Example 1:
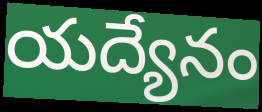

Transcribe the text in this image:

యద్యేనం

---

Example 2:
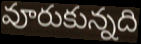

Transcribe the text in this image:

వూరుకున్నది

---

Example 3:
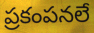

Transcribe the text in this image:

ప్రకంపనలే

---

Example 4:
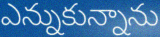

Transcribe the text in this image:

ఎన్నుకున్నాను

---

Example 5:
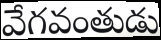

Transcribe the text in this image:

వేగవంతుడు